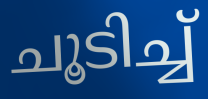
ചൂടിച്ച്